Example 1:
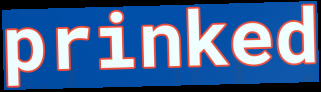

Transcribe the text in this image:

prinked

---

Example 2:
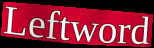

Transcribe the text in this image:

Leftword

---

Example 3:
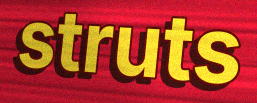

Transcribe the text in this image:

struts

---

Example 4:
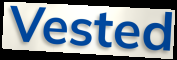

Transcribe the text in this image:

Vested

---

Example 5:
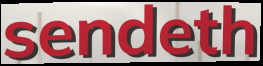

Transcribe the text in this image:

sendeth